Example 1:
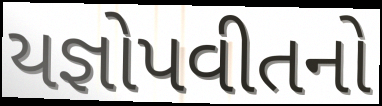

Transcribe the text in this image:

યજ્ઞોપવીતનો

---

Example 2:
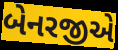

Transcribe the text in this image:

બેનરજીએ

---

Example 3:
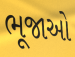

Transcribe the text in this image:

ભૂજાઓ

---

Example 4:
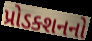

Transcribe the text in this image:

પ્રોડક્શનનો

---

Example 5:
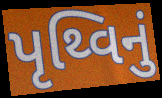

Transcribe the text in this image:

પૃથ્વિનું